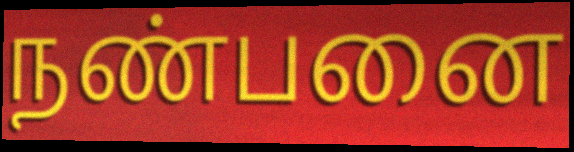
நண்பனை